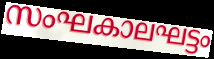
സംഘകാലഘട്ടം